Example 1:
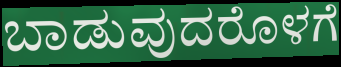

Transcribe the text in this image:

ಬಾಡುವುದರೊಳಗೆ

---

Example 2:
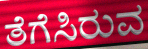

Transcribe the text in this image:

ತೆಗೆಸಿರುವ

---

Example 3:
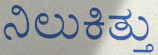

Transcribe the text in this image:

ನಿಲುಕಿತ್ತು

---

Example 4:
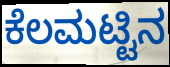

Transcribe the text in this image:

ಕೆಲಮಟ್ಟಿನ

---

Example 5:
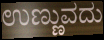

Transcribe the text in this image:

ಉಣ್ಣುವದು